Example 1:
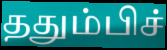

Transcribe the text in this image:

ததும்பிச்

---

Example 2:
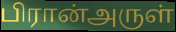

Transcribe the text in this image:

பிரான்அருள்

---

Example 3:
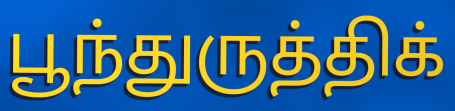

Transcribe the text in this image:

பூந்துருத்திக்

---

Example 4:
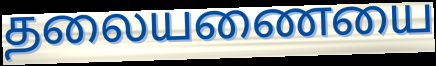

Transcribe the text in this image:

தலையணையை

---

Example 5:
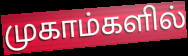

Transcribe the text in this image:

முகாம்களில்